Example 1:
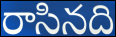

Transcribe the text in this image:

రాసినది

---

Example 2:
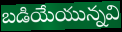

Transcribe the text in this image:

బడియేయున్నవి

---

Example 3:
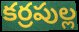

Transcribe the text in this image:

కర్రపుల్ల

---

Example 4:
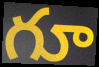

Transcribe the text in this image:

గూ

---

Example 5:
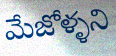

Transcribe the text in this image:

మేజోళ్ళని